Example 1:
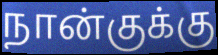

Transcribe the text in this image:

நான்குக்கு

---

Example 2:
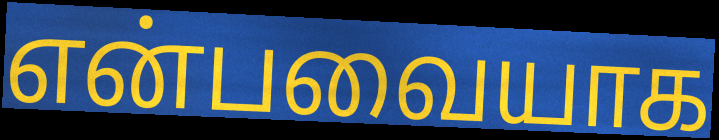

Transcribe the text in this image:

என்பவையாக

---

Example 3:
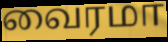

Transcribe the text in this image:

வைரமா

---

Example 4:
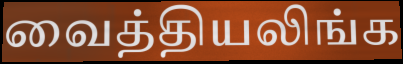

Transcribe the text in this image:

வைத்தியலிங்க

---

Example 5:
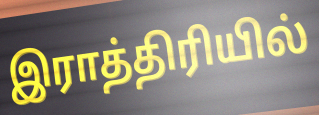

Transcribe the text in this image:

இராத்திரியில்